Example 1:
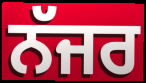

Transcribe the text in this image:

ਨੱਜਰ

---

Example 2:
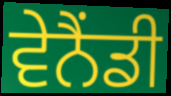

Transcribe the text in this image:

ਵੇਨੈਂਡੀ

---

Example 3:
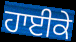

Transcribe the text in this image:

ਹਾਈਕੇ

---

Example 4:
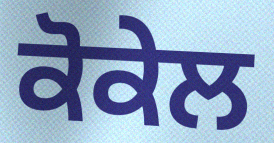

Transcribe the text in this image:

ਕੋਕੇਲ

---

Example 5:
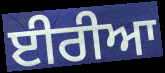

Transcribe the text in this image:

ਈਰੀਆ